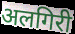
अलगिरी